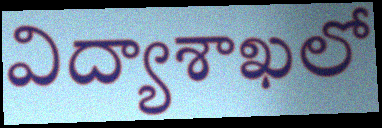
విద్యాశాఖలో